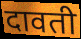
दावती